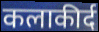
कलाकीर्द